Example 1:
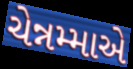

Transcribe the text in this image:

ચેન્નમ્માએ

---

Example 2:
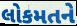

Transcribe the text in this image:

લોકમતને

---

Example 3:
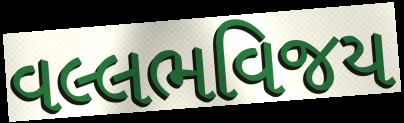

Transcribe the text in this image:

વલ્લભવિજય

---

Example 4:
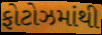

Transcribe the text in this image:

ફોટોઝમાંથી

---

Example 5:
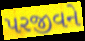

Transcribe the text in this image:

પરજીવને